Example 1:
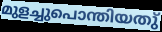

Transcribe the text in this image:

മുളച്ചുപൊന്തിയതു്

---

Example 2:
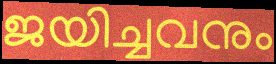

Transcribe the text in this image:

ജയിച്ചവനും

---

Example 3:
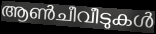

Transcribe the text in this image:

ആൺചീവീടുകൾ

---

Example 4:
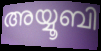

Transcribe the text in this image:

അയ്യൂബി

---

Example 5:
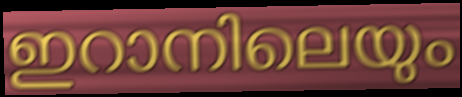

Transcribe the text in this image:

ഇറാനിലെയും